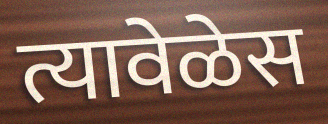
त्यावेळेस